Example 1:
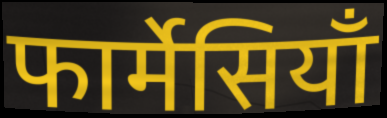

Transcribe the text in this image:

फार्मेसियाँ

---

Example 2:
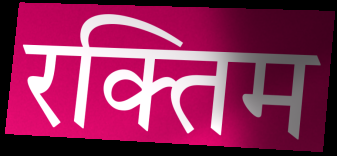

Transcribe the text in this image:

रक्तिम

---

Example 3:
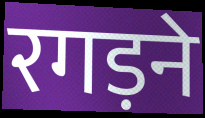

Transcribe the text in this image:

रगड़ने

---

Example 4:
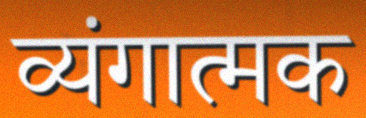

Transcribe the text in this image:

व्यंगात्मक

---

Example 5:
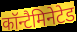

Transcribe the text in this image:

कॉन्टैमिनेटेड